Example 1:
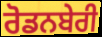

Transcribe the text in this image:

ਰੋਡਨਬੇਰੀ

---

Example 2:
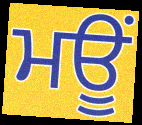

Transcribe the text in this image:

ਮਊਂ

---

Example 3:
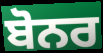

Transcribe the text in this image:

ਬੋਨਰ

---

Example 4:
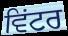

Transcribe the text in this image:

ਵਿਂਟਰ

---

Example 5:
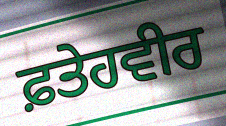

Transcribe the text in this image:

ਫ਼ਤੇਹਵੀਰ